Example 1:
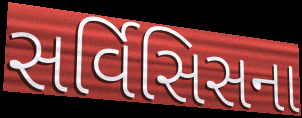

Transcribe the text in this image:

સર્વિસિસના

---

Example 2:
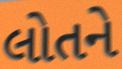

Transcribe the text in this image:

લોતને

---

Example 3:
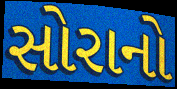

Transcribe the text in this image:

સોરાનો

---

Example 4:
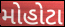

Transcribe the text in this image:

મોહોટા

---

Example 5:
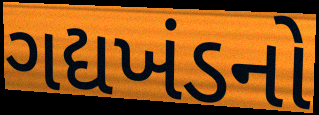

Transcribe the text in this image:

ગદ્યખંડનો